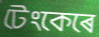
টেংকেৰে